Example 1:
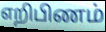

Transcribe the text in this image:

எறிபிணம்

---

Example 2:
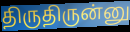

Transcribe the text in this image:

திருதிருன்னு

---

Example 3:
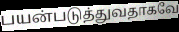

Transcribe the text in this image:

பயன்படுத்துவதாகவே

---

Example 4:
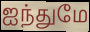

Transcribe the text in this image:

ஐந்துமே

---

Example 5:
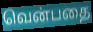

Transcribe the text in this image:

வென்பதை